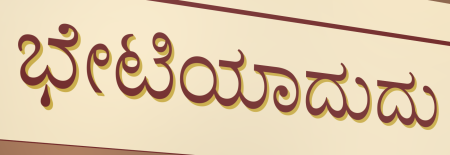
ಭೇಟಿಯಾದುದು